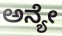
ಅನ್ಯೇ